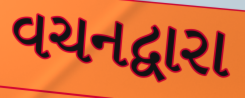
વચનદ્વારા